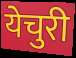
येचुरी